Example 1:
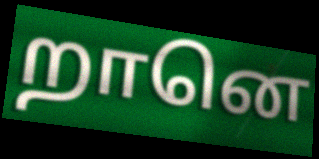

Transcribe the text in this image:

றானெ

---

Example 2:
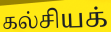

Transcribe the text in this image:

கல்சியக்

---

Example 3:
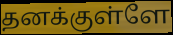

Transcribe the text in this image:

தனக்குள்ளே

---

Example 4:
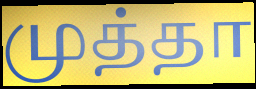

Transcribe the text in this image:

முத்தா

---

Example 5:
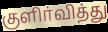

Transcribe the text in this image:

குளிர்வித்து